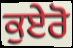
ਕੁਏਰੋ